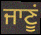
ਜਾਣੂਂ